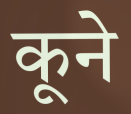
कूने